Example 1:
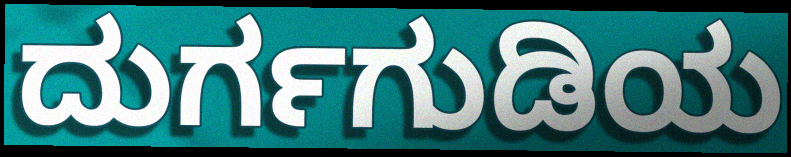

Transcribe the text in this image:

ದುರ್ಗಗುಡಿಯ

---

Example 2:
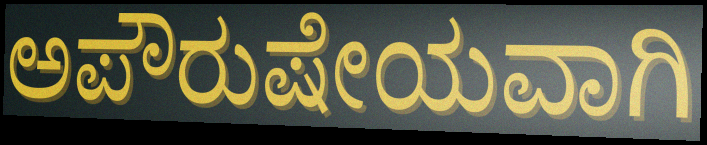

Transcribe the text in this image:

ಅಪೌರುಷೇಯವಾಗಿ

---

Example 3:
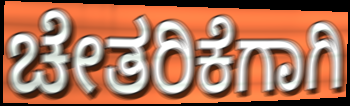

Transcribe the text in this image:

ಚೇತರಿಕೆಗಾಗಿ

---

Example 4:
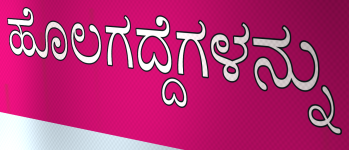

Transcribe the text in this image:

ಹೊಲಗದ್ದೆಗಳನ್ನು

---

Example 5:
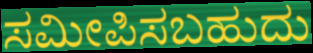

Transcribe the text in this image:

ಸಮೀಪಿಸಬಹುದು